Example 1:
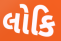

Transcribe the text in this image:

લોકિ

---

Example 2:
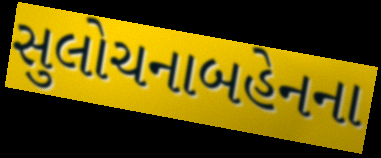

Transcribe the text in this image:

સુલોચનાબહેનના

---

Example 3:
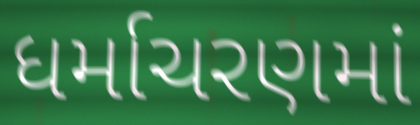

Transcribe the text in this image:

ધર્માચરણમાં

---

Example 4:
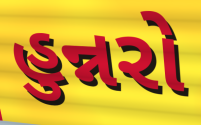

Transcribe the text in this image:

હુન્નરો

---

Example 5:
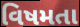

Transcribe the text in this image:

વિષમતા